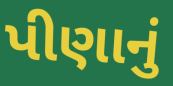
પીણાનું